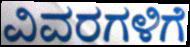
ವಿವರಗಳಿಗೆ